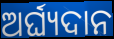
ଅର୍ଘ୍ୟଦାନ